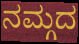
ನಮ್ಗದ